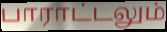
பாராட்டலும்